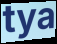
tya